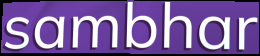
sambhar